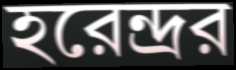
হরেন্দ্রর